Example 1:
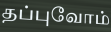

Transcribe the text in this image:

தப்புவோம்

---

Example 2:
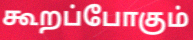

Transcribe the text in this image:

கூறப்போகும்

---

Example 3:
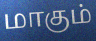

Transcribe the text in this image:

மாகும்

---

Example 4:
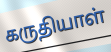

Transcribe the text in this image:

கருதியாள்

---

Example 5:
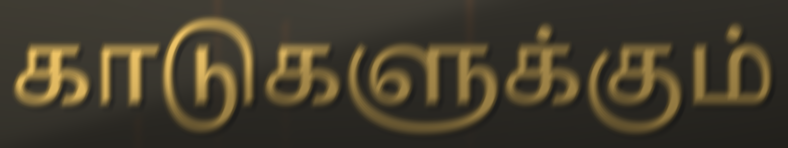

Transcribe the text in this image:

காடுகளுக்கும்